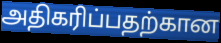
அதிகரிப்பதற்கான